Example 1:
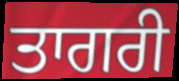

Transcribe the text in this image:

ਤਾਗਰੀ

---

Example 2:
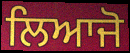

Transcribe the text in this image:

ਲਿਆਜੋ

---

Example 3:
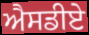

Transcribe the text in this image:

ਐਸਡੀਏ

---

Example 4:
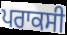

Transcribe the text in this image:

ਪਰਾਕਸੀ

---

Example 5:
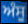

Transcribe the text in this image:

ਅੰਸੂ